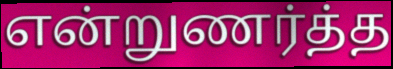
என்றுணர்த்த